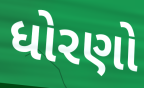
ધોરણો